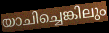
യാചിച്ചെങ്കിലും